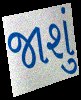
જાશું